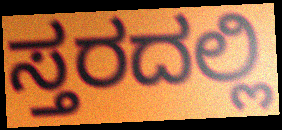
ಸ್ತರದಲ್ಲಿ